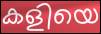
കളിയെ